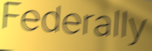
Federally